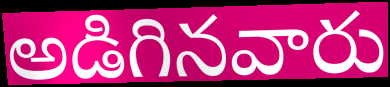
అడిగినవారు